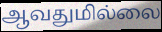
ஆவதுமில்லை